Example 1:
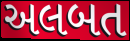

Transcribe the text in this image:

અલબત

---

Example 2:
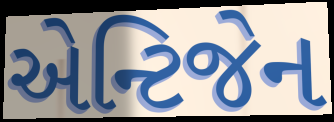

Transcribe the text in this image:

એન્ટિજેન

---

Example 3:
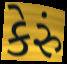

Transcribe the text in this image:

કેરું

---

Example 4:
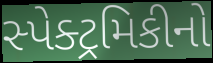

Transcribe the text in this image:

સ્પેક્ટ્રમિકીનો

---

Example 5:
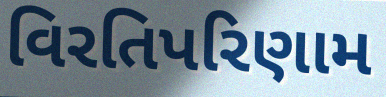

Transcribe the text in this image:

વિરતિપરિણામ